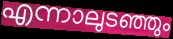
എന്നാലുടഞ്ഞും